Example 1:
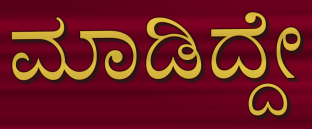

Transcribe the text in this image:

ಮಾಡಿದ್ದೇ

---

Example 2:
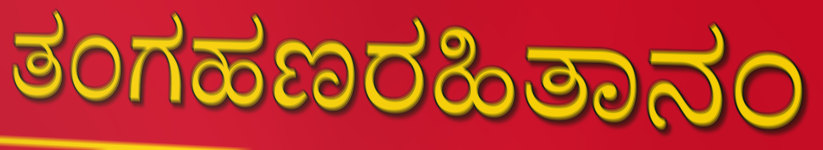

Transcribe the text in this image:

ತಂಗಹಣರಹಿತಾನಂ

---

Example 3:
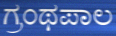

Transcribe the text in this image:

ಗ್ರಂಥಪಾಲ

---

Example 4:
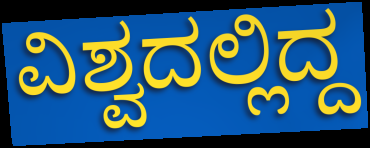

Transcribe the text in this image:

ವಿಶ್ವದಲ್ಲಿದ್ದ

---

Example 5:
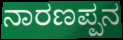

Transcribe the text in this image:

ನಾರಣಪ್ಪನ